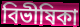
বিভীষিকা